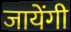
जायेंगी